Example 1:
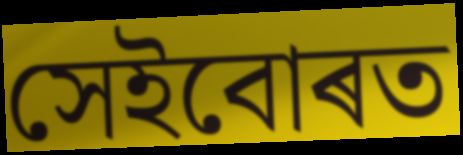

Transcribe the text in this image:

সেইবোৰত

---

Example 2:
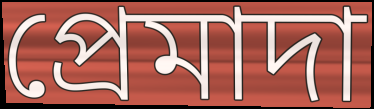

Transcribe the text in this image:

প্ৰেমাদা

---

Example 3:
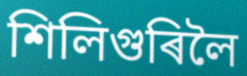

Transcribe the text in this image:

শিলিগুৰিলৈ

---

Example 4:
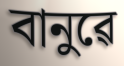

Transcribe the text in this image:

বানুৱে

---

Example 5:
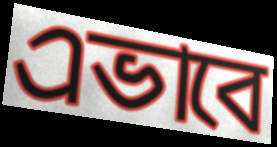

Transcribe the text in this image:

এভাবে